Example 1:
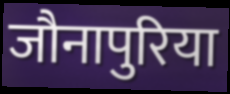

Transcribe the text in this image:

जौनापुरिया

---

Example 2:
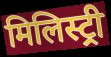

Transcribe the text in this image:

मिलिस्ट्री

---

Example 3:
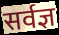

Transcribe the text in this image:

सर्वज्ञ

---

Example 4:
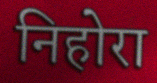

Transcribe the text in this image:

निहोरा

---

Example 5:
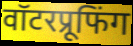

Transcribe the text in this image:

वॉटरप्रूफिंग